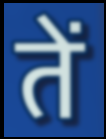
तें